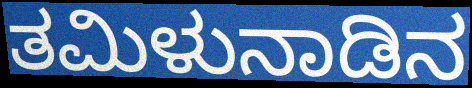
ತಮಿಳುನಾಡಿನ